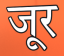
जूर